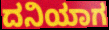
ದನಿಯಾಗ